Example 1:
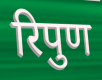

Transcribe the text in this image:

रिपुण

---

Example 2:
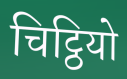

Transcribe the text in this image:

चिट्ठियो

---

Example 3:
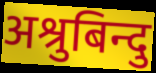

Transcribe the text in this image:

अश्रुबिन्दु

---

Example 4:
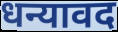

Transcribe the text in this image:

धन्यावद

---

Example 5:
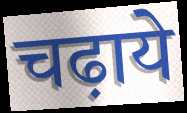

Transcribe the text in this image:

चढ़ाये